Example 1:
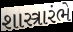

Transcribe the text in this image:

શાસ્ત્રારંભે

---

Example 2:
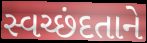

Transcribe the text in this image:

સ્વચ્છંદતાને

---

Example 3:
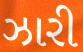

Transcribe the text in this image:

ઝારી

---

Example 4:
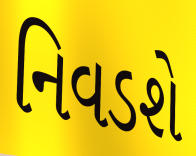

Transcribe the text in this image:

નિવડશે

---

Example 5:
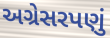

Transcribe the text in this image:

અગ્રેસરપણું